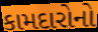
કામદારોનો